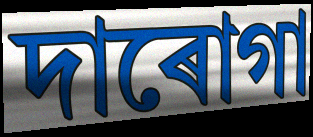
দাৰোগা